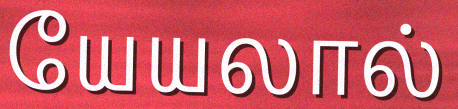
யேயலால்